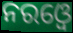
ନରଓ୍ୱେ